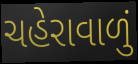
ચહેરાવાળું